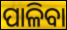
ପାଳିବା